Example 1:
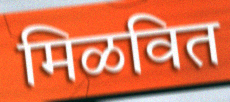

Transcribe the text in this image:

मिळवित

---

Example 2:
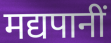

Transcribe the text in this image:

मद्यपानीं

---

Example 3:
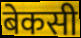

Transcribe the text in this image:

बेकसी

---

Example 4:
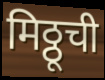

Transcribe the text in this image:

मिठ्ठूची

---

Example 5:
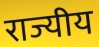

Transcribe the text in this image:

राज्यीय